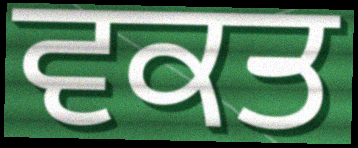
ਵਕਤ